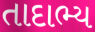
તાદાભ્ય